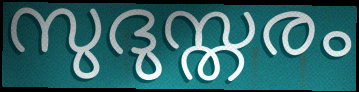
സുദുസ്തരം